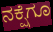
ನಕ್ಷೆಗೂ